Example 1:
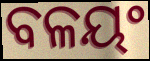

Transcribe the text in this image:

ବଳୟଂ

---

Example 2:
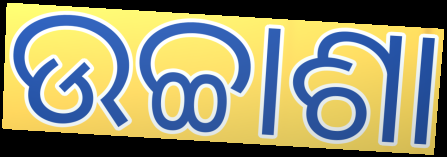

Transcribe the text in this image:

ଉଚ୍ଚାଶା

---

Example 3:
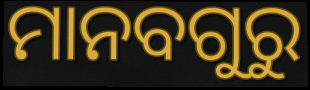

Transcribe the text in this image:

ମାନବଗୁରୁ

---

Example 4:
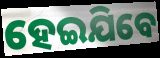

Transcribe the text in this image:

ହେଇଯିବେ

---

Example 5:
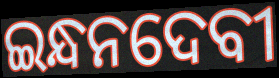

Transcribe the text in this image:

ଇନ୍ଧନଦେବୀ